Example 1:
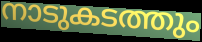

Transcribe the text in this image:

നാടുകടത്തും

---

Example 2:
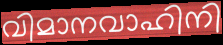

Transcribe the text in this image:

വിമാനവാഹിനി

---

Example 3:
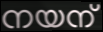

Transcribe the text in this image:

നയന്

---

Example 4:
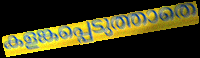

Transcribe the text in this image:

കളങ്കപ്പെടുത്താതെ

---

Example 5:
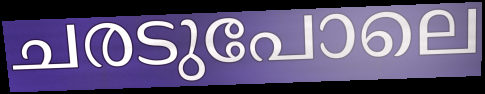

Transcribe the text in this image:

ചരടുപോലെ